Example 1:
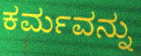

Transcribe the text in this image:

ಕರ್ಮವನ್ನು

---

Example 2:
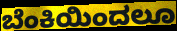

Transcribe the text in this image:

ಬೆಂಕಿಯಿಂದಲೂ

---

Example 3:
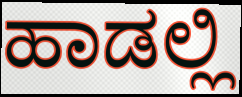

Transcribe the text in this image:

ಹಾಡಲ್ಲಿ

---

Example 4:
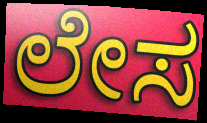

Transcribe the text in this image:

ಲೇಸ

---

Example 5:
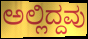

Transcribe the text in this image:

ಅಲ್ಲಿದ್ದವು